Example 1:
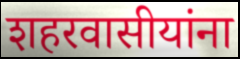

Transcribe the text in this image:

शहरवासीयांना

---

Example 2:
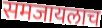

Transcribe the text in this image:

समजायलाच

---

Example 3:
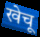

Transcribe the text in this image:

खेचू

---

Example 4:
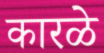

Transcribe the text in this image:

कारळे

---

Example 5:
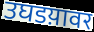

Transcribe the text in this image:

उघडय़ावर